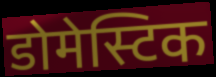
डोमेस्टिक